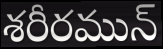
శరీరమున్